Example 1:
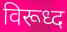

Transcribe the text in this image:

विरूध्द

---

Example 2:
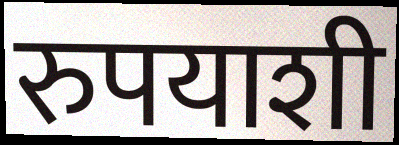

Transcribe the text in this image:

रुपयाशी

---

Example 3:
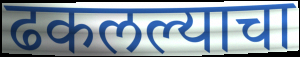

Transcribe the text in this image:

ढकलल्याचा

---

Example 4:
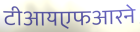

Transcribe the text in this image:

टीआयएफआरने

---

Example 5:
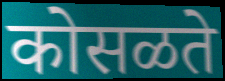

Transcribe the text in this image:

कोसळते